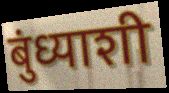
बुंध्याशी